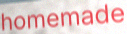
homemade